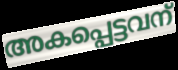
അകപ്പെട്ടവന്